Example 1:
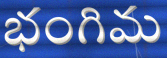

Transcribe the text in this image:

భంగిమ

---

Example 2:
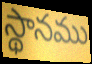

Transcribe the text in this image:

స్థానము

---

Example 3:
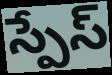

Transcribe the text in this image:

స్పేస్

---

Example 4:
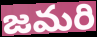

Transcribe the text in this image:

జమరి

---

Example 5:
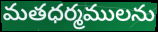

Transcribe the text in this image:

మతధర్మములను